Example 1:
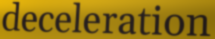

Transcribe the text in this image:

deceleration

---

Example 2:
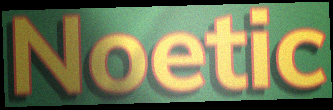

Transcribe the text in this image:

Noetic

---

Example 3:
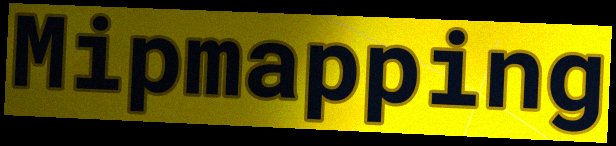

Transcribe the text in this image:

Mipmapping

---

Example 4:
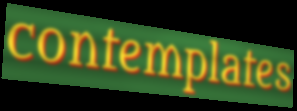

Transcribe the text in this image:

contemplates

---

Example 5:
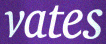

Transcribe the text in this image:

vates